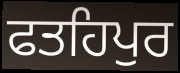
ਫਤਹਿਪੁਰ